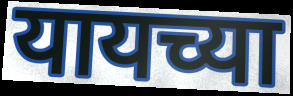
यायच्या